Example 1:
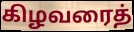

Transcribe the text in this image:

கிழவரைத்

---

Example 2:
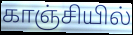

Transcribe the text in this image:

காஞ்சியில்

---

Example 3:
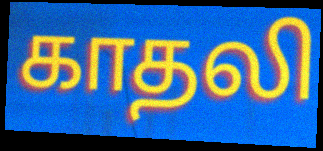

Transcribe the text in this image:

காதலி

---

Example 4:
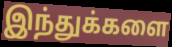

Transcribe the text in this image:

இந்துக்களை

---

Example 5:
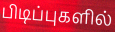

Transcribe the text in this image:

பிடிப்புகளில்